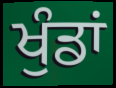
ਖੁੰਡਾਂ